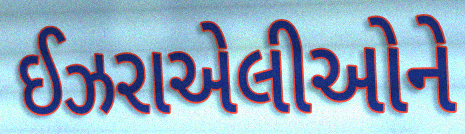
ઈઝરાએલીઓને